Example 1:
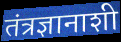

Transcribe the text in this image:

तंत्रज्ञानाशी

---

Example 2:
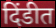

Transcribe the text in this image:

दिंडीत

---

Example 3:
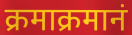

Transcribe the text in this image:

क्रमाक्रमानं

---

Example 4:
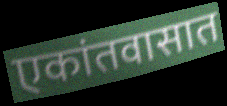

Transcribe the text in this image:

एकांतवासात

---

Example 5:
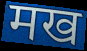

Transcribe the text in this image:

मख